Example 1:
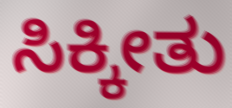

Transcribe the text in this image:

ಸಿಕ್ಕೀತು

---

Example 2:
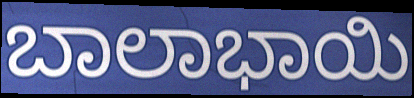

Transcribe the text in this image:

ಬಾಲಾಭಾಯಿ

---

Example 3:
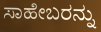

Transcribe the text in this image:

ಸಾಹೇಬರನ್ನು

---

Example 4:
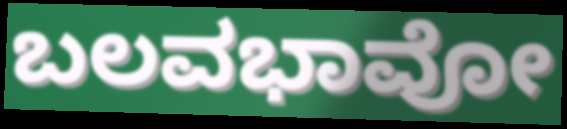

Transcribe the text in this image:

ಬಲವಭಾವೋ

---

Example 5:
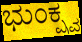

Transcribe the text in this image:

ಭುಂಕ್ಷ್ವ